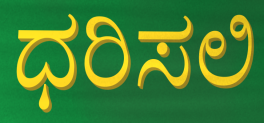
ಧರಿಸಲಿ